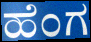
ಹೆಂಗ